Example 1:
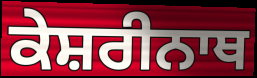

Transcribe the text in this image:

ਕੇਸ਼ਰੀਨਾਥ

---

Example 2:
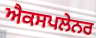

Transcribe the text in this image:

ਐਕਸਪਲੇਨਰ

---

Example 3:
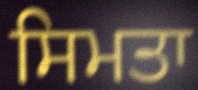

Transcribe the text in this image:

ਸਿਮਤਾ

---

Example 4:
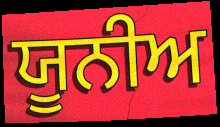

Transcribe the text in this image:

ਯੂਨੀਅ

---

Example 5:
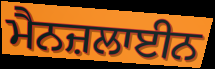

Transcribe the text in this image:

ਮੈਨਜ਼ਲਾਈਨ